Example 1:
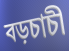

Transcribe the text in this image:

বড়চাচী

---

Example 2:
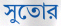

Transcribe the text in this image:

সুতোর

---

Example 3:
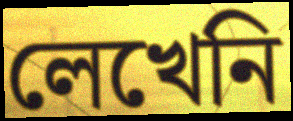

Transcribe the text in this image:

লেখেনি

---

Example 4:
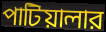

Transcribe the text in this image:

পাটিয়ালার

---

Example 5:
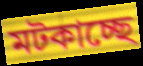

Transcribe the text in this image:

মটকাচ্ছে